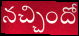
నచ్చిందో